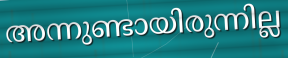
അന്നുണ്ടായിരുന്നില്ല